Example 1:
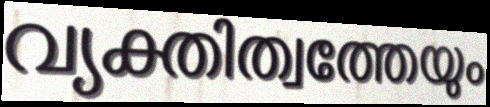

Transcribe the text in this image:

വ്യക്തിത്വത്തേയും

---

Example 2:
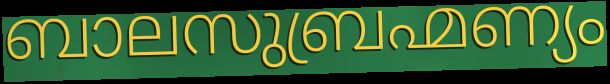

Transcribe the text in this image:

ബാലസുബ്രഹ്മണ്യം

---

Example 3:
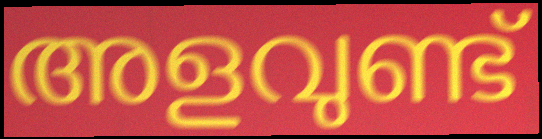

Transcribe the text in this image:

അളവുണ്ട്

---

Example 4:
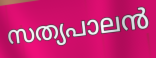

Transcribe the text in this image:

സത്യപാലൻ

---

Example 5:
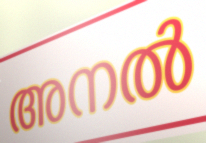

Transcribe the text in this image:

അനൽ